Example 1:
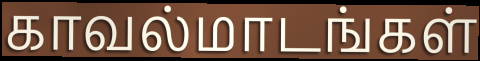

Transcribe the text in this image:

காவல்மாடங்கள்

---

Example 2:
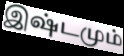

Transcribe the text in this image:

இஷ்டமும்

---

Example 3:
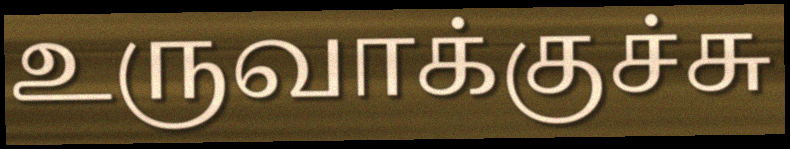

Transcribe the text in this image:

உருவாக்குச்சு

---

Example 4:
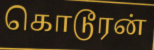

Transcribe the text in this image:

கொடூரன்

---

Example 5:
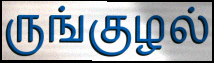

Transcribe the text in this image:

ருங்குழல்